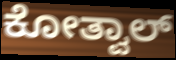
ಕೋತ್ವಾಲ್